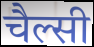
चैल्सी